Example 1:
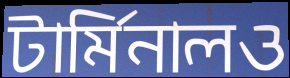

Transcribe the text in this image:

টার্মিনালও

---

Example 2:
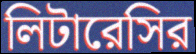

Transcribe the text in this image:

লিটারেসির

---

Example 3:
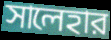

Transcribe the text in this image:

সালেহার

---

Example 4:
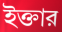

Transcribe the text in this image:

ইক্তার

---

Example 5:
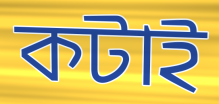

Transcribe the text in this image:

কটাই